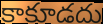
కాకూడదు